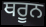
ਥਰੂਨ